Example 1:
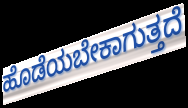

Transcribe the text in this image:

ಹೊಡೆಯಬೇಕಾಗುತ್ತದೆ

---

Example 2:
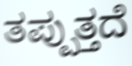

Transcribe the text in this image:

ತಪ್ಪುತ್ತದೆ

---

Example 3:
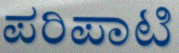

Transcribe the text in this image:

ಪರಿಪಾಟಿ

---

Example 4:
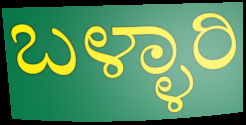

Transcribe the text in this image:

ಬಳ್ಳಾರಿ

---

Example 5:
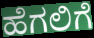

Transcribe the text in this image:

ಹೆಗಲಿಗೆ